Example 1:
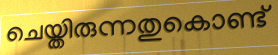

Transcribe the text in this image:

ചെയ്തിരുന്നതുകൊണ്ട്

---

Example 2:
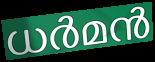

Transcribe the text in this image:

ധർമൻ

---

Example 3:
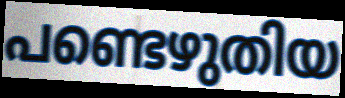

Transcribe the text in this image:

പണ്ടെഴുതിയ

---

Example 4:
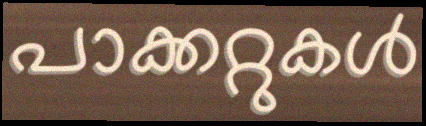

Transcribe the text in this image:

പാക്കറ്റുകൾ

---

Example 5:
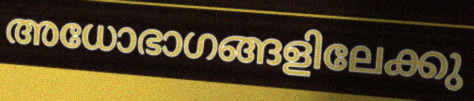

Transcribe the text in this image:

അധോഭാഗങ്ങളിലേക്കു